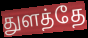
துளத்தே